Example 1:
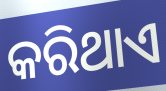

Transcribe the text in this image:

କରିଥାଏ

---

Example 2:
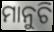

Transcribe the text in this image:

ମାନୁଚି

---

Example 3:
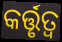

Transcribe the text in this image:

କର୍ତ୍ତୃତ୍ୱ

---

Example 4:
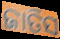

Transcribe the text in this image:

ଜାତିସ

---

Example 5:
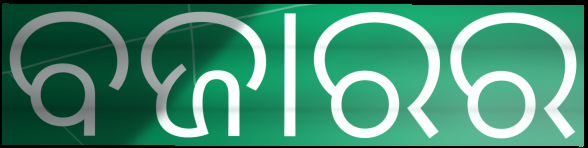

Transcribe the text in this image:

ବଜାରର